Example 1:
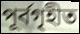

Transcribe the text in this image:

পূর্বগৃহীত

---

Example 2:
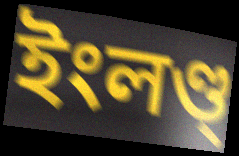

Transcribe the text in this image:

ইংলণ্ড্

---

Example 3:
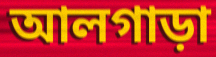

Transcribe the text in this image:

আলগাড়া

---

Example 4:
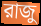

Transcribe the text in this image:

রাজু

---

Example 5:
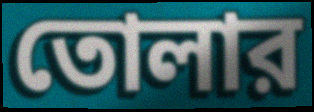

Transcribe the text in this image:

তোলার